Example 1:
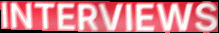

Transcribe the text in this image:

INTERVIEWS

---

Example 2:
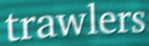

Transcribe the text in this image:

trawlers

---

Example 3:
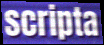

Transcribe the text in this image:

scripta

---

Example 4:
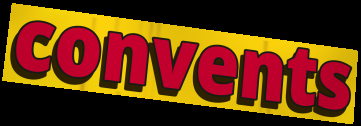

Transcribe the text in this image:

convents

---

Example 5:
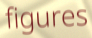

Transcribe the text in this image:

figures